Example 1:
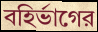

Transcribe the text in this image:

বহির্ভাগের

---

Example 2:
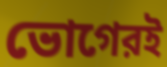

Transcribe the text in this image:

ভোগেরই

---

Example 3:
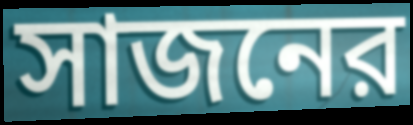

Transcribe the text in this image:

সাজনের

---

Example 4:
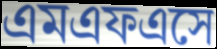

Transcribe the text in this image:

এমএফএসে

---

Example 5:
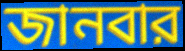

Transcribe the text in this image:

জানবার